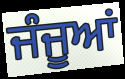
ਜੰਜੂਆਂ